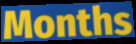
Months